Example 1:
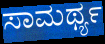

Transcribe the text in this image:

ಸಾಮರ್ಥ್ಯ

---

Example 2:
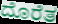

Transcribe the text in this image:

ದೊರೆತ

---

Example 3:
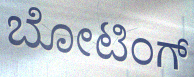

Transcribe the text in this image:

ಬೋಟಿಂಗ್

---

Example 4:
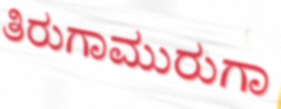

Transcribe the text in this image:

ತಿರುಗಾಮುರುಗಾ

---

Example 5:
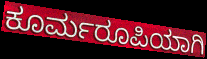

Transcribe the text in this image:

ಕೂರ್ಮರೂಪಿಯಾಗಿ